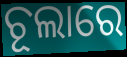
ଚୂଲାରେ